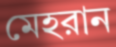
মেহরান